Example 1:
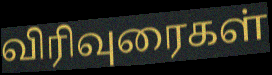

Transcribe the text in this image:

விரிவுரைகள்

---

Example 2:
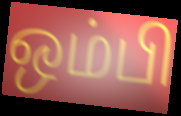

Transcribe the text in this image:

ஒம்பி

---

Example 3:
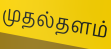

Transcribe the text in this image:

முதல்தளம்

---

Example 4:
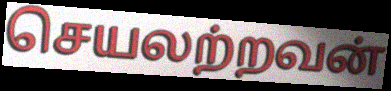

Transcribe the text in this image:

செயலற்றவன்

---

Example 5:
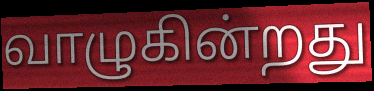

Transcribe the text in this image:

வாழுகின்றது